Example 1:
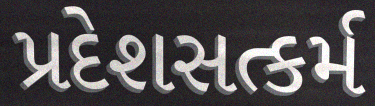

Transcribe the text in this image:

પ્રદેશસત્કર્મ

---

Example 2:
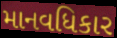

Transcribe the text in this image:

માનવધિકાર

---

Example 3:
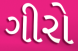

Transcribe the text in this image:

ગીરો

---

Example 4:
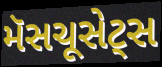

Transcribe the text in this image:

મૅસચૂસેટ્સ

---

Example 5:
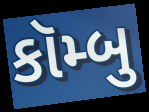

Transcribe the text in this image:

કૉમ્બુ